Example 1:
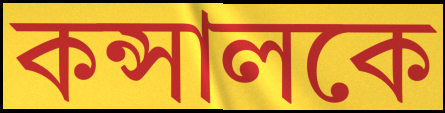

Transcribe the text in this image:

কন্সালকে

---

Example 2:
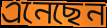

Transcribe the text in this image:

এনেছেন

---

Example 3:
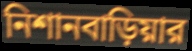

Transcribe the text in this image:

নিশানবাড়িয়ার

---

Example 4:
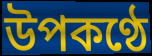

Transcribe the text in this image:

উপকণ্ঠে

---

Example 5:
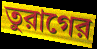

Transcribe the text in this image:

তুরাগের